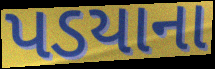
પડયાના